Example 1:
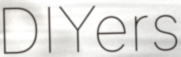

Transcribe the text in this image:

DIYers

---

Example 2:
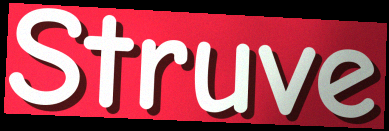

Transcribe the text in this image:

Struve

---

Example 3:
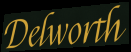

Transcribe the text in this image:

Delworth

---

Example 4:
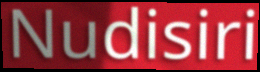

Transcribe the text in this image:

Nudisiri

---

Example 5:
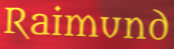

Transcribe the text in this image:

Raimund